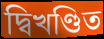
দ্বিখণ্ডিত